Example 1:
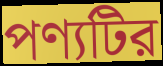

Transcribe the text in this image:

পণ্যটির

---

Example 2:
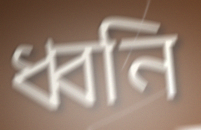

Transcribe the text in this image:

ধ্বনি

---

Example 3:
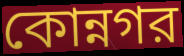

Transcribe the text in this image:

কোন্নগর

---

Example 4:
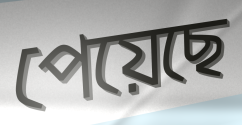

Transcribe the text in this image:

পেয়েছে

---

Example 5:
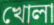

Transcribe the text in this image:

খোলা